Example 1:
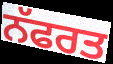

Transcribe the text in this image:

ਨੱਫਰਤ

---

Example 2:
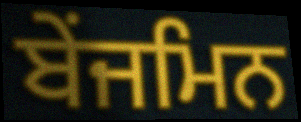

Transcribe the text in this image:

ਬੇਂਜਮਿਨ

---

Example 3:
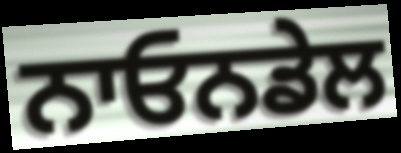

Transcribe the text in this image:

ਨਾਓਨਡੇਲ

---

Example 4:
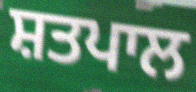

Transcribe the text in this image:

ਸ਼ਤਪਾਲ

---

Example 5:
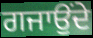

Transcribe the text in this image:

ਗਜਾਉਂਦੇ